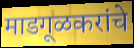
माडगूळकरांचे